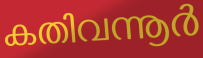
കതിവന്നൂർ